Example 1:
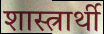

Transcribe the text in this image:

शास्त्रार्थी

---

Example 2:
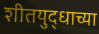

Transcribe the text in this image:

शीतयुद्धाच्या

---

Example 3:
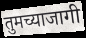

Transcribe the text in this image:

तुमच्याजागी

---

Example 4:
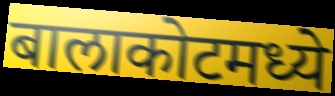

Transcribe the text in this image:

बालाकोटमध्ये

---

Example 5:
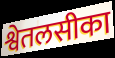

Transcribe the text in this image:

श्वेतलसीका